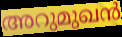
അറുമുഖൻ